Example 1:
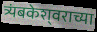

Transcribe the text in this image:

त्र्यंबकेश्वराच्या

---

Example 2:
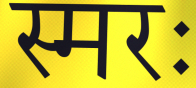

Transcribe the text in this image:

स्मरः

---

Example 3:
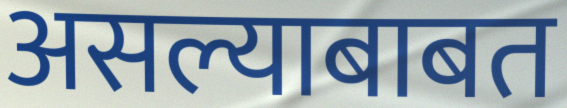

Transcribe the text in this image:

असल्याबाबत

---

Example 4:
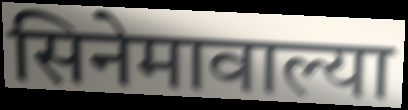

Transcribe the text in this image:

सिनेमावाल्या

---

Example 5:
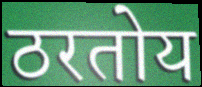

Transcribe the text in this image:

ठरतोय